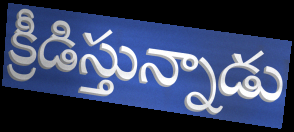
క్రీడిస్తున్నాడు